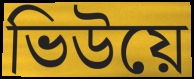
ভিউয়ে